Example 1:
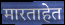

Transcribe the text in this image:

मारताहेत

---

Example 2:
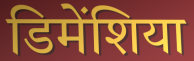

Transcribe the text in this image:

डिमेंशिया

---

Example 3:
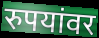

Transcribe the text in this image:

रुपयांवर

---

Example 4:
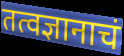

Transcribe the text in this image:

तत्वज्ञानाचं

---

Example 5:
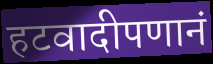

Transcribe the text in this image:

हटवादीपणानं